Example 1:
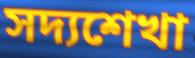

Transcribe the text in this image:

সদ্যশেখা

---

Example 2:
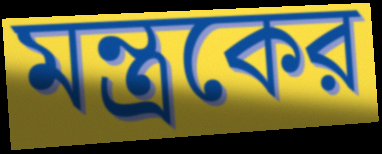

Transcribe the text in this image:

মন্ত্রকের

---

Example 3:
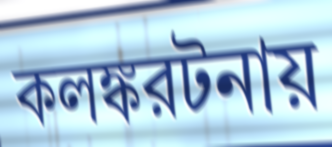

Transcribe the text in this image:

কলঙ্করটনায়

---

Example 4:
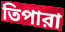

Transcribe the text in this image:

তিপারা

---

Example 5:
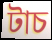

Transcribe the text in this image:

টাচ